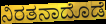
ನಿರತನಾದೊಡೆ